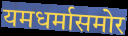
यमधर्मासमोर